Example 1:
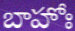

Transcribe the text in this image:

బాహోః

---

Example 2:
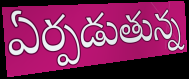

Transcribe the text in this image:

ఏర్పడుతున్న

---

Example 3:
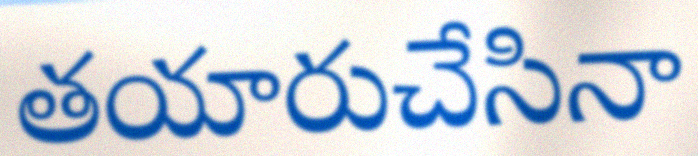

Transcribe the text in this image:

తయారుచేసినా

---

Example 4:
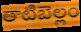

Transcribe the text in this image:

తాటిబెల్లం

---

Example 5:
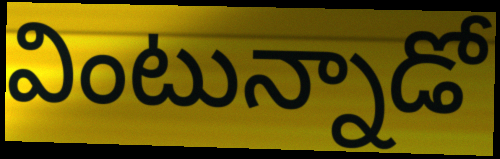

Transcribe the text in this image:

వింటున్నాడో